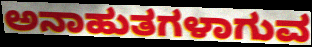
ಅನಾಹುತಗಳಾಗುವ